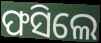
ଫସିଲେ